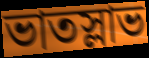
ভাতস্লাভ